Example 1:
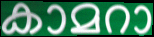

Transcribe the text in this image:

കാമറാ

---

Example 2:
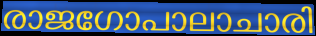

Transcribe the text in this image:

രാജഗോപാലാചാരി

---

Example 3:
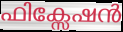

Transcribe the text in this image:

ഫിക്സേഷൻ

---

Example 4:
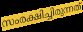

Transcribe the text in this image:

സംരക്ഷിച്ചിരുന്നത്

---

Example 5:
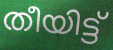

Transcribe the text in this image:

തീയിട്ട്